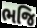
ભજિ